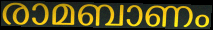
രാമബാണം